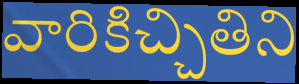
వారికిచ్చితిని